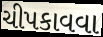
ચીપકાવવા